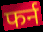
फर्न